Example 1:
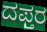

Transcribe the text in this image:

ದಫ್ತರ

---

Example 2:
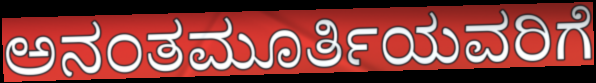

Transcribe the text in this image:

ಅನಂತಮೂರ್ತಿಯವರಿಗೆ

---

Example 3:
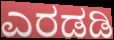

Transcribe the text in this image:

ಎರಡಡಿ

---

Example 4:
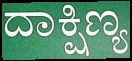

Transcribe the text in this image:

ದಾಕ್ಷಿಣ್ಯ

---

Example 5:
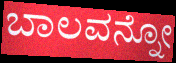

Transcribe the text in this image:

ಬಾಲವನ್ನೋ